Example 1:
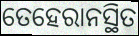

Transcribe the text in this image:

ତେହେରାନସ୍ଥିତ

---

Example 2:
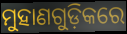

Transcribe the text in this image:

ମୁହାଣଗୁଡ଼ିକରେ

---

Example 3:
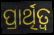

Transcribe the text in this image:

ପ୍ରାର୍ଥିତ୍ୱ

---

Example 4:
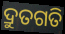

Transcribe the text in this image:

ଦ୍ରୁତଗତି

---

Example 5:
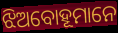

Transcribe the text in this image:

ଝିଅବୋହୂମାନେ